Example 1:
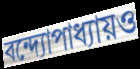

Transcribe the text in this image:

বন্দ্যোপাধ্যায়ও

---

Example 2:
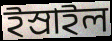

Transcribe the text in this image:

ইস্রাইল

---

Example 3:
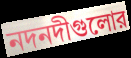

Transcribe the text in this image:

নদনদীগুলোর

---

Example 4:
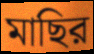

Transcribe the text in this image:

মাছির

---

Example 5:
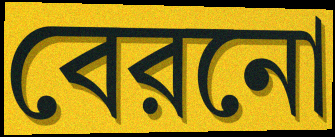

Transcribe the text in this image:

বেরনো